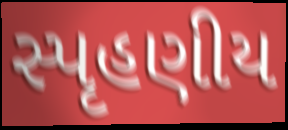
સ્પૃહણીય